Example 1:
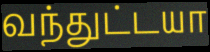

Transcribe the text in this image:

வந்துட்டயா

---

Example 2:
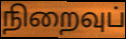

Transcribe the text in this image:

நிறைவுப்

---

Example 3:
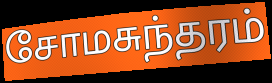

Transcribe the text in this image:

சோமசுந்தரம்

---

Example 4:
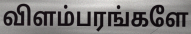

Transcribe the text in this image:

விளம்பரங்களே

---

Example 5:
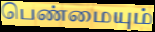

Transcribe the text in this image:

பெண்மையும்